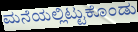
ಮನೆಯಲ್ಲಿಟ್ಟುಕೊಂಡು